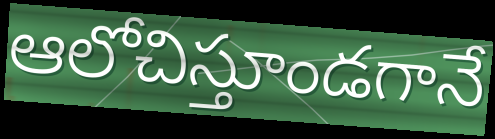
ఆలోచిస్తూండగానే